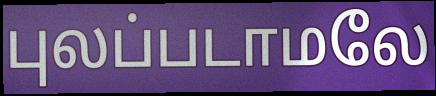
புலப்படாமலே